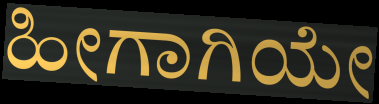
ಹೀಗಾಗಿಯೇ